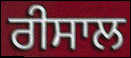
ਰੀਸਾਲ